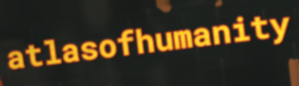
atlasofhumanity